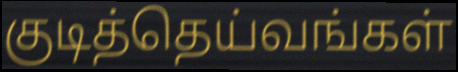
குடித்தெய்வங்கள்